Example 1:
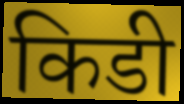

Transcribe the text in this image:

किडी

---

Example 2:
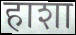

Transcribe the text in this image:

हाशा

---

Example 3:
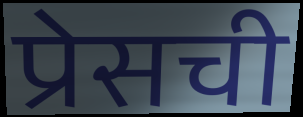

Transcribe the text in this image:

प्रेसची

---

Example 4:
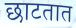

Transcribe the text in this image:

छाटतात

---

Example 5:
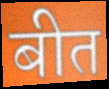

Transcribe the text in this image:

बीत